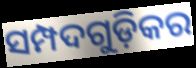
ସମ୍ପଦଗୁଡ଼ିକର